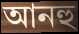
আনহু